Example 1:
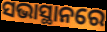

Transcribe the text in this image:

ସଭାସ୍ଥାନରେ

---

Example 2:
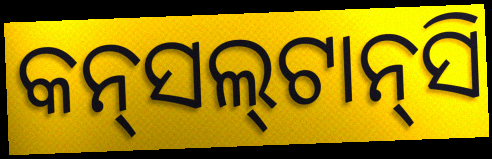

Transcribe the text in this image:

କନ୍‌ସଲ୍‌ଟାନ୍‌ସି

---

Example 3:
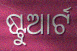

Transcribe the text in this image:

ଷ୍ଟୁଆର୍ଟ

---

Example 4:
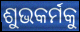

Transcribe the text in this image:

ଶୁଭକର୍ମକୁ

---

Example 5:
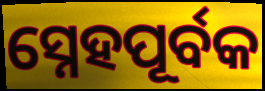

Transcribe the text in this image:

ସ୍ନେହପୂର୍ବକ